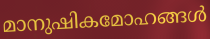
മാനുഷികമോഹങ്ങൾ